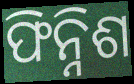
ଫିନ୍ନିଶ